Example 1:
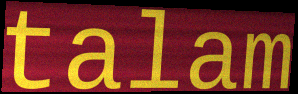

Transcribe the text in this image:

talam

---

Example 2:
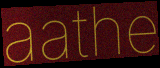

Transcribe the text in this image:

aathe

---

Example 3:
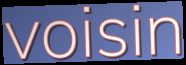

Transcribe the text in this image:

voisin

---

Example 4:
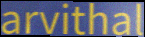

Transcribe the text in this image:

arvithal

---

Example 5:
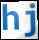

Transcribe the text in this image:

hj